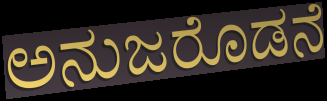
ಅನುಜರೊಡನೆ